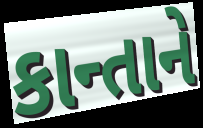
કાન્તાને